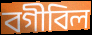
বগীবিল